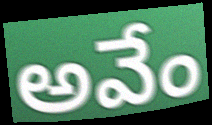
అవేం